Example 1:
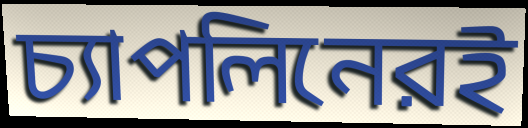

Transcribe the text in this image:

চ্যাপলিনেরই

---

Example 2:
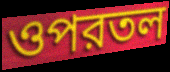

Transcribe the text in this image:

ওপরতল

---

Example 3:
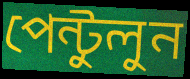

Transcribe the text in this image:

পেন্টুলুন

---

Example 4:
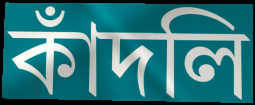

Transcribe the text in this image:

কাঁদলি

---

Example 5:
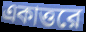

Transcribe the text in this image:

একাত্তরে